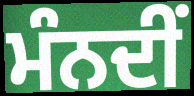
ਮੰਨਦੀਂ